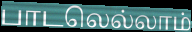
பாடலெல்லாம்